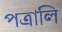
পত্রালি